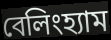
বেলিংহ্যাম